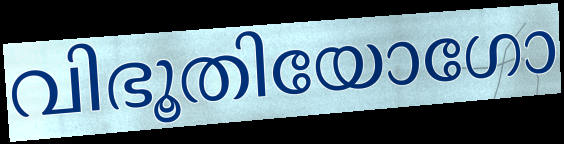
വിഭൂതിയോഗോ